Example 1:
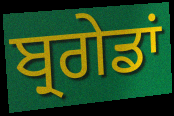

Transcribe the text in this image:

ਬ੍ਰਗੇਡਾਂ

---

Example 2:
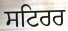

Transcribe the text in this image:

ਸਟਿਰਰ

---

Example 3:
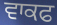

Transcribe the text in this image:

ਵਾਕਫ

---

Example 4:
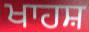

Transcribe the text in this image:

ਖਾਹਸ਼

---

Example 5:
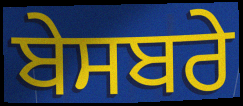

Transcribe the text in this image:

ਬੇਸਬਰੇ